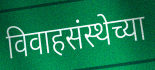
विवाहसंस्थेच्या